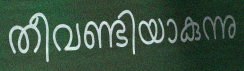
തീവണ്ടിയാകുന്നു